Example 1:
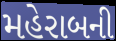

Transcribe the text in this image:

મહેરાબની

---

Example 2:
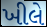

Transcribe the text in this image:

ખીલે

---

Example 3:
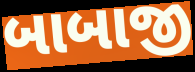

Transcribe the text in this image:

બાબાજી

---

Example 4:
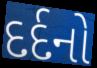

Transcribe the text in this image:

દર્દનો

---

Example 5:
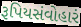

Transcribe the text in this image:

રૂપિયસંવોહારં